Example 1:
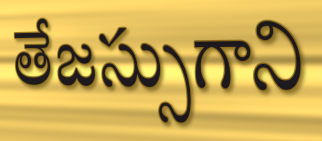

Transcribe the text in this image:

తేజస్సుగాని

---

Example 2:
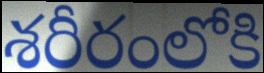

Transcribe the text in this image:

శరీరంలోకి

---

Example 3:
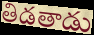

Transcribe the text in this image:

తిడతాడు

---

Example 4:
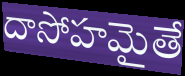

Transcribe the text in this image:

దాసోహమైతే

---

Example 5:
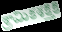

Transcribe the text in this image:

శ్రామికశక్తికి